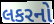
લકરનો